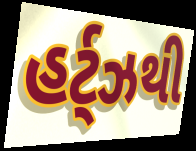
હર્ટ્ઝથી